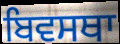
ਬਿਵਸਥਾ